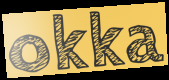
okka